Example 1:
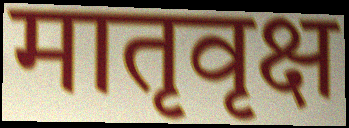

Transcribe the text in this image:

मातृवृक्ष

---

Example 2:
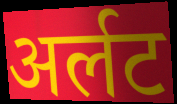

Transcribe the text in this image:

अर्लट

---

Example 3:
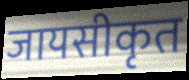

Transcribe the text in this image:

जायसीकृत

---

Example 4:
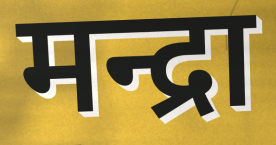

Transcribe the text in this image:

मन्द्रा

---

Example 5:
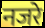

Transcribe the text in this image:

नजरे